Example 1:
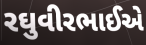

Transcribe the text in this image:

રઘુવીરભાઈએ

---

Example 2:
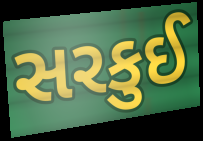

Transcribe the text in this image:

સરકુઈ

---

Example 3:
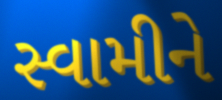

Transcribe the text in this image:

સ્વામીને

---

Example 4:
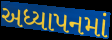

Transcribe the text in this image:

અધ્યાપનમાં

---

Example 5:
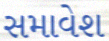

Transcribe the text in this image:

સમાવેશ